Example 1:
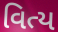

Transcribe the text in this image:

વિત્ય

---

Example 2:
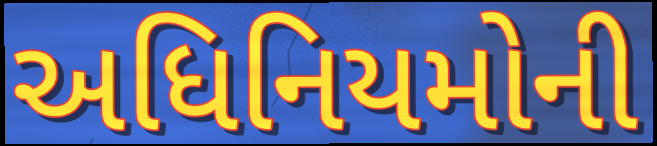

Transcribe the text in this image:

અધિનિયમોની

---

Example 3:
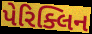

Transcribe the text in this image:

પેરિક્લિન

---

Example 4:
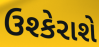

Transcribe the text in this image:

ઉશ્કેરાશે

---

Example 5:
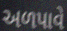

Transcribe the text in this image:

અળપાવે